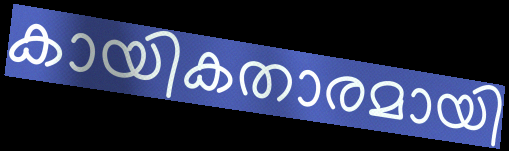
കായികതാരമായി